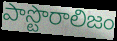
పాస్టొరాలిజం